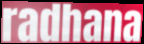
radhana